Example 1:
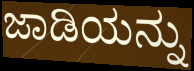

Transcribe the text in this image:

ಜಾಡಿಯನ್ನು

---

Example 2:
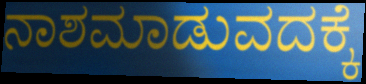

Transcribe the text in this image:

ನಾಶಮಾಡುವದಕ್ಕೆ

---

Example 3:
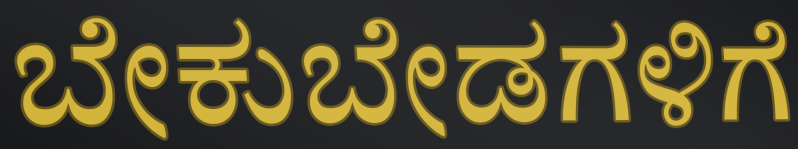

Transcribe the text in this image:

ಬೇಕುಬೇಡಗಳಿಗೆ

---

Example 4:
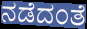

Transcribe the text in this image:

ನಡೆದಂತೆ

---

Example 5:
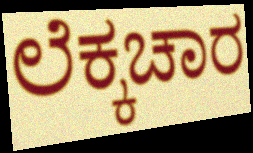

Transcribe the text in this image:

ಲೆಕ್ಕಚಾರ